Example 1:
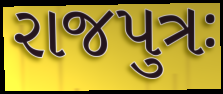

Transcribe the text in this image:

રાજપુત્રઃ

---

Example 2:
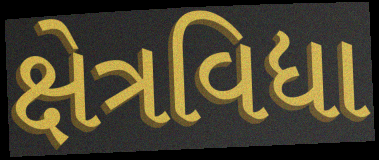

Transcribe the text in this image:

ક્ષેત્રવિદ્યા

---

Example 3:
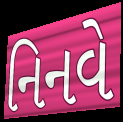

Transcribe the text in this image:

નિનવે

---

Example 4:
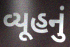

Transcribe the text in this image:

વ્યૂહનું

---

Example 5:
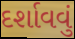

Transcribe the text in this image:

દર્શાવવું